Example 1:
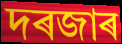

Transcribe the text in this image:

দৰজাৰ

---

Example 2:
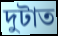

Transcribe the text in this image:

দুটাত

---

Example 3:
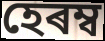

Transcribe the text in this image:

হেৰম্ব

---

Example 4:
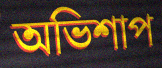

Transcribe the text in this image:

অভিশাপ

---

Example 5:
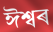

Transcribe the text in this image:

ঈশ্বৰ